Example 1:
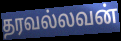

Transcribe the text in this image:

தரவல்லவன்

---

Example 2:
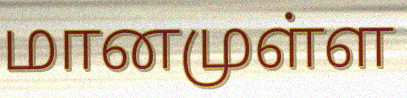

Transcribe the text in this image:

மானமுள்ள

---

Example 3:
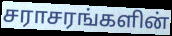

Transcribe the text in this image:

சராசரங்களின்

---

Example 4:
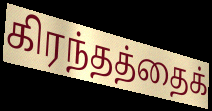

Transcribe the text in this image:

கிரந்தத்தைக்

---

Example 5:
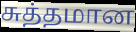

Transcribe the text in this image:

சுத்தமான